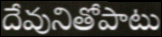
దేవునితోపాటు